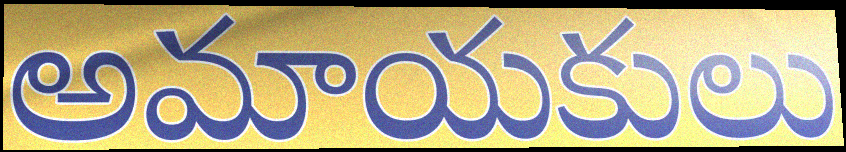
అమాయకులు